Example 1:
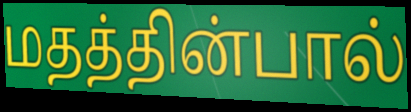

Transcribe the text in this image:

மதத்தின்பால்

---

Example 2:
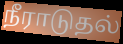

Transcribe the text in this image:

நீராடுதல்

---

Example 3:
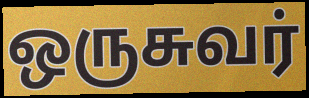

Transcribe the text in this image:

ஒருசுவர்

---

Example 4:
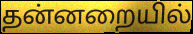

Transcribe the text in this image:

தன்னறையில்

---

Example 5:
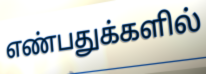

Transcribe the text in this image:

எண்பதுக்களில்